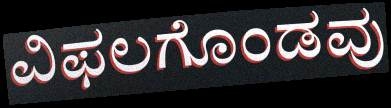
ವಿಫಲಗೊಂಡವು